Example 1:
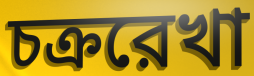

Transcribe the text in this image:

চক্ররেখা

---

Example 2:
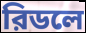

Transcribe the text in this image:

রিডলে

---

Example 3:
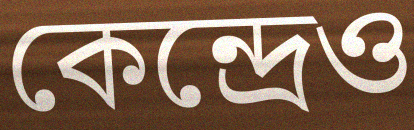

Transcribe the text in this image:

কেন্দ্রেও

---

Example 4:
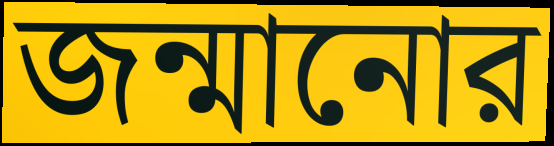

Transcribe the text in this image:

জন্মানোর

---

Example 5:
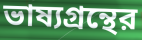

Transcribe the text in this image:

ভাষ্যগ্রন্থের